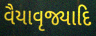
વૈયાવૃજ્યાદિ